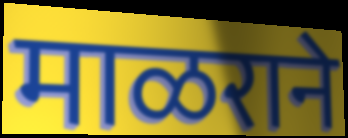
माळराने